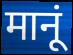
मानूं